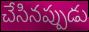
చేసినప్పుడు